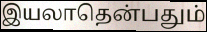
இயலாதென்பதும்